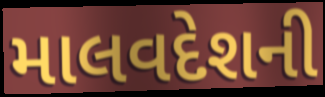
માલવદેશની